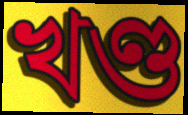
খণ্ড